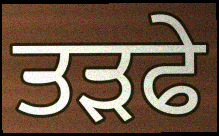
ਤੜਫੇ